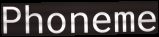
Phoneme